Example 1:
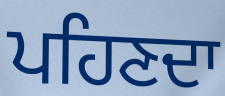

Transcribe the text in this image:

ਪਹਿਣਦਾ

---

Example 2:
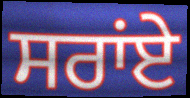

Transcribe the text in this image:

ਸਰਾਂਏ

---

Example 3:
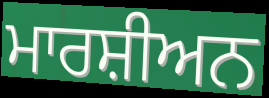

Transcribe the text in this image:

ਮਾਰਸ਼ੀਅਨ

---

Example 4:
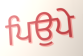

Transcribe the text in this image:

ਪਿਉਪੇ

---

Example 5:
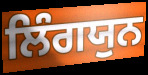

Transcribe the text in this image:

ਲਿੰਗਯੁਨ